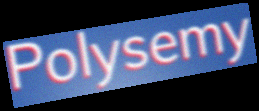
Polysemy